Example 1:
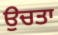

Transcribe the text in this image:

ਉਚਤਾ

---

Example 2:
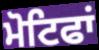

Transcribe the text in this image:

ਮੋਟਿਫਾਂ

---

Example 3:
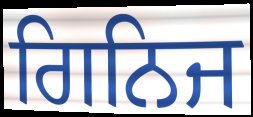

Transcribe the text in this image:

ਗਿਨਿਜ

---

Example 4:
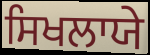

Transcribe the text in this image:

ਸਿਖਲਾਯੇ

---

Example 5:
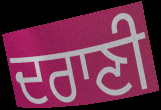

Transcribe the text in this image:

ਦਰਾਣੀ